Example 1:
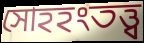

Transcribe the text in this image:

সোহহংতত্ত্ব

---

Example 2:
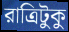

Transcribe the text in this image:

রাত্রিটুকু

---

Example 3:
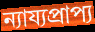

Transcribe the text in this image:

ন্যায্যপ্রাপ্য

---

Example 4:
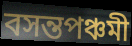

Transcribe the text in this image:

বসন্তপঞ্চমী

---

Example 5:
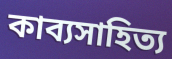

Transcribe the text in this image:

কাব্যসাহিত্য